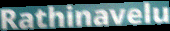
Rathinavelu